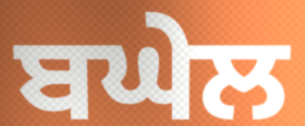
ਬਘੇਲ